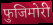
फुजिमोरी